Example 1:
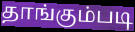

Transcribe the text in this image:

தாங்கும்படி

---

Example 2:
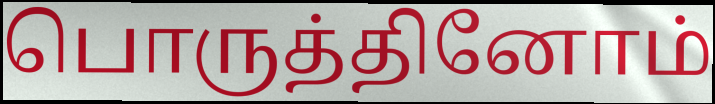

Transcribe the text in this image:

பொருத்தினோம்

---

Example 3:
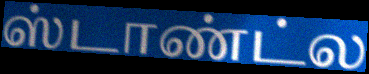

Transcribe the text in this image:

ஸ்டாண்ட்ல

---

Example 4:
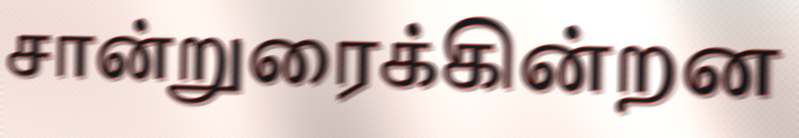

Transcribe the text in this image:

சான்றுரைக்கின்றன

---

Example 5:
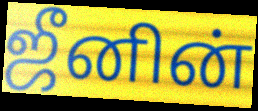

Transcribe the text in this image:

ஜீனின்